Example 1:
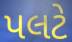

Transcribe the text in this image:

પલટે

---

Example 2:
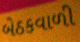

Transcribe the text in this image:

બેઠકવાળી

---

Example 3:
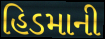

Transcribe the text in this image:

હિડમાની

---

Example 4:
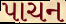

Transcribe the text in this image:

પાચન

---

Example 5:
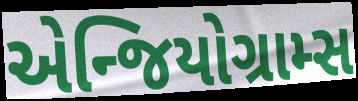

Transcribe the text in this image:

એન્જિયોગ્રામ્સ